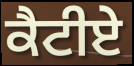
ਕੈਟੀਏ